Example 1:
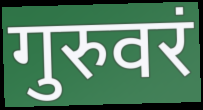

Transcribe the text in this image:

गुरुवरं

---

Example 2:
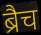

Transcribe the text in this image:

ब्रैच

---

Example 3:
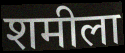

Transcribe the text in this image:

शमीला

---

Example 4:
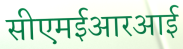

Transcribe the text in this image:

सीएमईआरआई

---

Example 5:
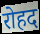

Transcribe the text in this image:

रोहद